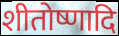
शीतोष्णादि